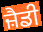
ਜ਼ੈਡੀ